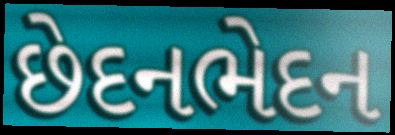
છેદનભેદન